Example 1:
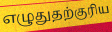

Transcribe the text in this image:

எழுதுதற்குரிய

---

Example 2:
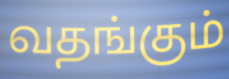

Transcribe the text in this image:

வதங்கும்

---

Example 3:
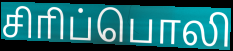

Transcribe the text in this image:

சிரிப்பொலி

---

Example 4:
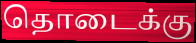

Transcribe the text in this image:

தொடைக்கு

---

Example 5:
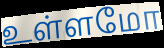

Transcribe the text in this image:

உள்ளமோ